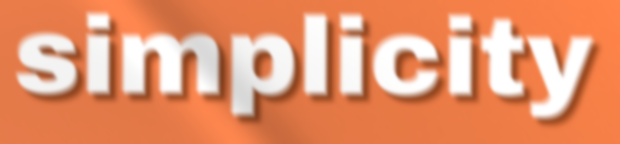
simplicity